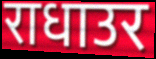
राधाउर